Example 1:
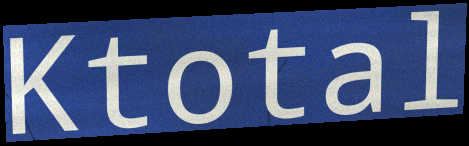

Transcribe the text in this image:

Ktotal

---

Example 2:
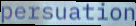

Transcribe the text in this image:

persuation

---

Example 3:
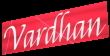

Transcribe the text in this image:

Vardhan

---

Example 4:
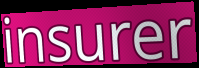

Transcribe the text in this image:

insurer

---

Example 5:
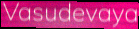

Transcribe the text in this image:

Vasudevaya